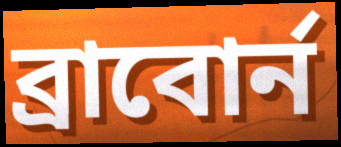
ব্রাবোর্ন